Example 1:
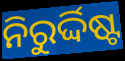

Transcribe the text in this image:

ନିରୁର୍ଦ୍ଦିଷ୍ଟ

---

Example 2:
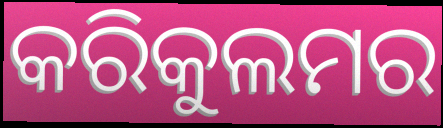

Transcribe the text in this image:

କରିକୁଲମର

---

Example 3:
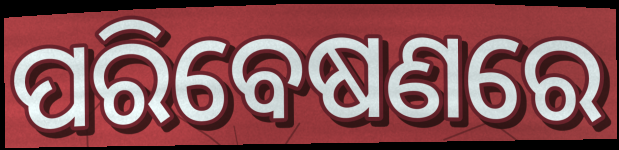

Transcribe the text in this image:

ପରିବେଷଣରେ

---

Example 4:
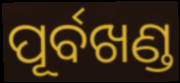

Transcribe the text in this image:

ପୂର୍ବଖଣ୍ଡ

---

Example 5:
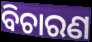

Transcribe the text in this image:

ବିଚାରଣ